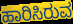
ಹಾರಿಸಿರುವ